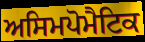
ਅਸਿਮਪੋਮੈਟਿਕ